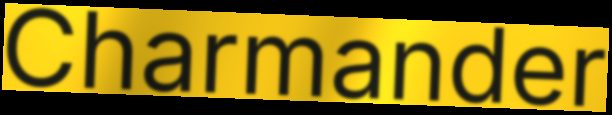
Charmander